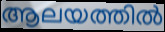
ആലയത്തിൽ